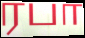
ரபா